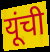
यूंची